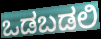
ಒಡಬಡಲಿ